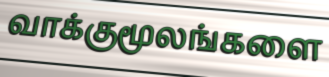
வாக்குமூலங்களை